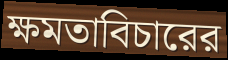
ক্ষমতাবিচারের